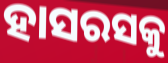
ହାସରସକୁ